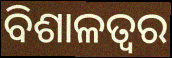
ବିଶାଳତ୍ୱର